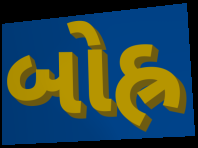
બોહ્ર